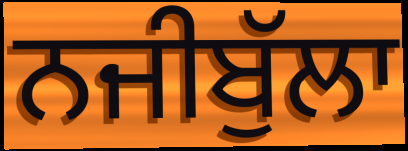
ਨਜੀਬੁੱਲਾ